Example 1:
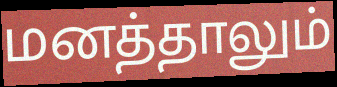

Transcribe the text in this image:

மனத்தாலும்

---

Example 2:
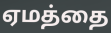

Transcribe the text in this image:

ஏமத்தை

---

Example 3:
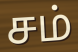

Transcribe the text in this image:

சம்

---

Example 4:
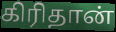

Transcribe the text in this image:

கிரிதான்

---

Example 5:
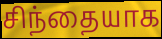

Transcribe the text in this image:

சிந்தையாக